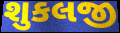
શુકલજી